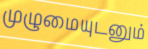
முழுமையுடனும்